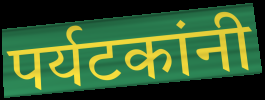
पर्यटकांनी